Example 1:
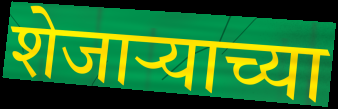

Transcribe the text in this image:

शेजार्‍याच्या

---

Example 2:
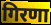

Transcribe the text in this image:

गिरणा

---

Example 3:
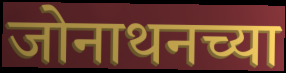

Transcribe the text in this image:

जोनाथनच्या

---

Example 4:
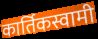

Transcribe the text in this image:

कार्तिकस्वामी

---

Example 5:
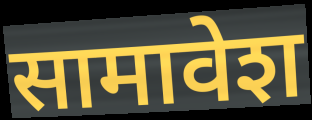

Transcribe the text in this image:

सामावेश